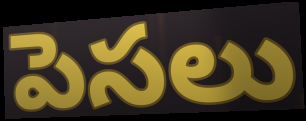
పెసలు